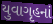
યુવાગૃહનાં